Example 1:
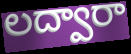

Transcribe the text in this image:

లద్వారా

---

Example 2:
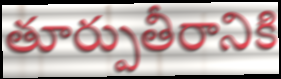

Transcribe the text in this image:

తూర్పుతీరానికి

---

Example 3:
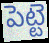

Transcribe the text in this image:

పెట్టె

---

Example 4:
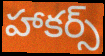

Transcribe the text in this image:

హాకర్స్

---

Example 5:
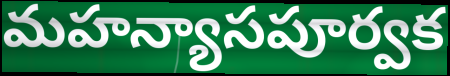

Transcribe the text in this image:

మహన్యాసపూర్వక